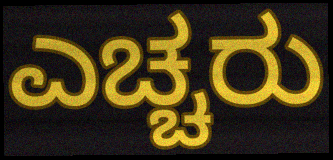
ಎಚ್ಚರು